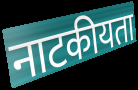
नाटकीयता